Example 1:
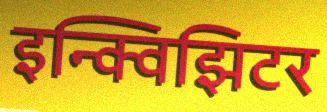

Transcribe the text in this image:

इन्क्विझिटर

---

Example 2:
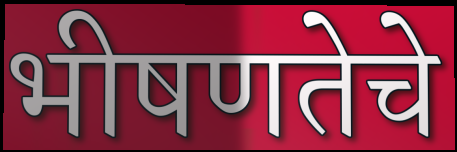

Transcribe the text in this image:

भीषणतेचे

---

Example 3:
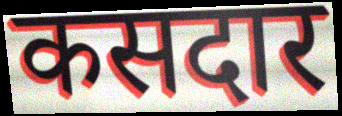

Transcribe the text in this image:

कसदार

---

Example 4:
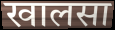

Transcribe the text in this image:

खालसा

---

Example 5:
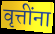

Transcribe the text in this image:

वृत्तींना